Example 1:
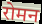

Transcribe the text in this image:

रोमन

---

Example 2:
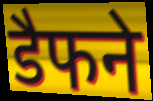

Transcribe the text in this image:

डैफने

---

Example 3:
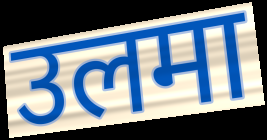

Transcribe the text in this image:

उलमा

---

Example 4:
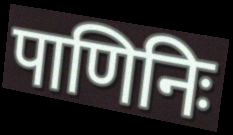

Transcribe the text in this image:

पाणिनिः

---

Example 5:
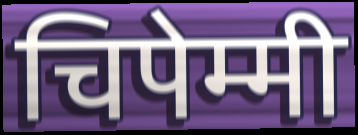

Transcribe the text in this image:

चिपेम्मी